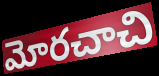
మోరచాచి